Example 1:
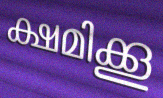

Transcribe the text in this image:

ക്ഷമിക്കൂ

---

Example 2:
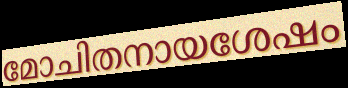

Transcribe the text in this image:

മോചിതനായശേഷം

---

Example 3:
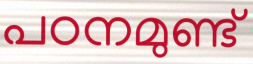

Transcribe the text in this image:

പഠനമുണ്ട്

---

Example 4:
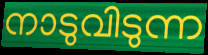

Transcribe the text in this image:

നാടുവിടുന്ന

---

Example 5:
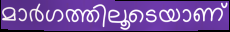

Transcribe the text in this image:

മാർഗത്തിലൂടെയാണ്